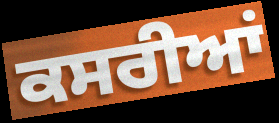
ਕਸਰੀਆਂ